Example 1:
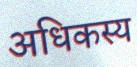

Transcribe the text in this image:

अधिकस्य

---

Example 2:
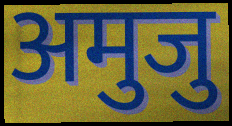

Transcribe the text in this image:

अमुजु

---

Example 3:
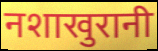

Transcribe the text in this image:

नशाखुरानी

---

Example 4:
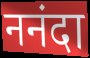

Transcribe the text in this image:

ननंदा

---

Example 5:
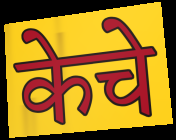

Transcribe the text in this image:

केचे